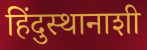
हिंदुस्थानाशी